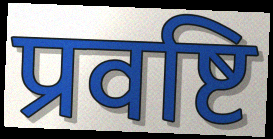
प्रवष्टि